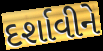
દર્શાવીને